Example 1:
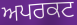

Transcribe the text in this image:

ਅਪਰਕਟ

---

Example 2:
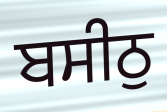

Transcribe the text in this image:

ਬਸੀਠੁ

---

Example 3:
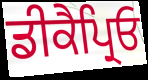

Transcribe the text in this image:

ਡੀਕੈਪ੍ਰਿਓ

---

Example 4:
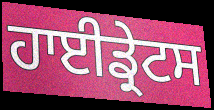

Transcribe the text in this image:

ਹਾਈਡ੍ਰੇਟਸ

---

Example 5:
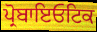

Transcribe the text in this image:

ਪ੍ਰੋਬਾਇਓਟਿਕ